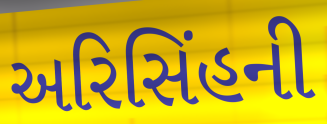
અરિસિંહની